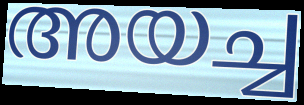
അയച്ച